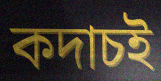
কদাচই